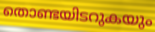
തൊണ്ടയിടറുകയും